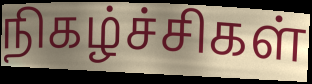
நிகழ்ச்சிகள்